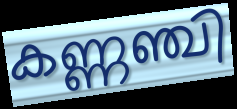
കണ്ണഞ്ചി